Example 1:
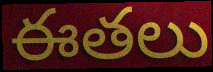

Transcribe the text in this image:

ఈతలు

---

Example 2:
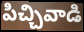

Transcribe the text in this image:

పిచ్చివాడి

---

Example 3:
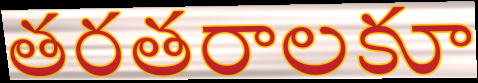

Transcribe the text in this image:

తరతరాలకూ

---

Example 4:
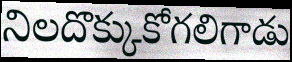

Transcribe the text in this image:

నిలదొక్కుకోగలిగాడు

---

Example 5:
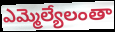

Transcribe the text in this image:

ఎమ్మెల్యేలంతా